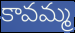
కావమ్మ